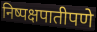
निष्पक्षपातीपणे